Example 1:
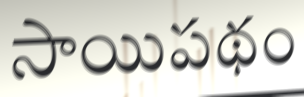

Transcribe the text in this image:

సాయిపథం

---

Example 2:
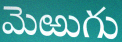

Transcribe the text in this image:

మెఱుగు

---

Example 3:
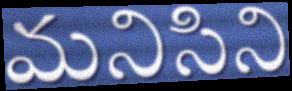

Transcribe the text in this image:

మనిసిని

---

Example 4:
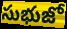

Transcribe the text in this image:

సుభుజో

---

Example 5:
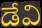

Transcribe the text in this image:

డేవి